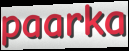
paarka